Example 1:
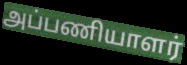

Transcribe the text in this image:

அப்பணியாளர்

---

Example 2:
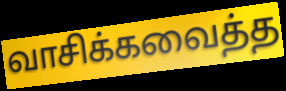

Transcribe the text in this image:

வாசிக்கவைத்த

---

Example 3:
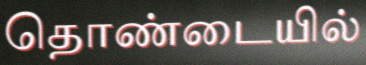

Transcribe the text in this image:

தொண்டையில்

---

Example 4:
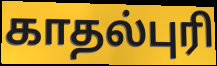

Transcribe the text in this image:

காதல்புரி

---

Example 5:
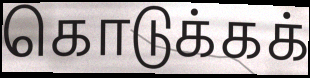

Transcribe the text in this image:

கொடுக்கக்